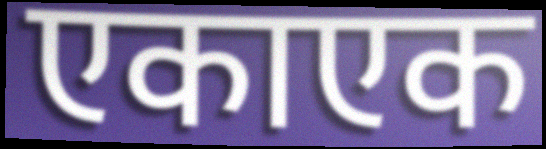
एकाएक